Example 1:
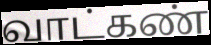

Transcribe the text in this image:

வாட்கண்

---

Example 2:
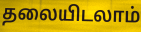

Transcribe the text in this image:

தலையிடலாம்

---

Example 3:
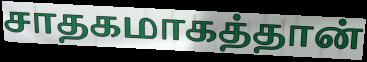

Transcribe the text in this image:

சாதகமாகத்தான்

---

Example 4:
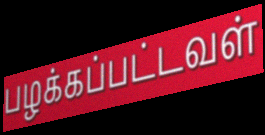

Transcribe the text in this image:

பழக்கப்பட்டவள்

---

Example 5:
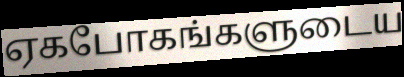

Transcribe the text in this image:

ஏகபோகங்களுடைய